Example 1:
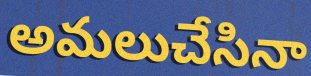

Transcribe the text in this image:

అమలుచేసినా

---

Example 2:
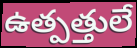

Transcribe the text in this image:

ఉత్పత్తులే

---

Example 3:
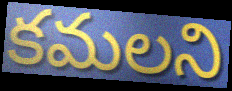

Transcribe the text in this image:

కమలని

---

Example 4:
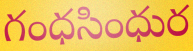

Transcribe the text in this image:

గంధసింధుర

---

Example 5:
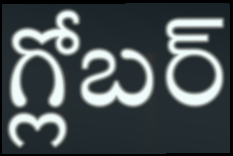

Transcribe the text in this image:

గ్లోబర్